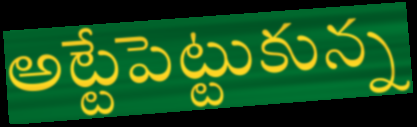
అట్టేపెట్టుకున్న